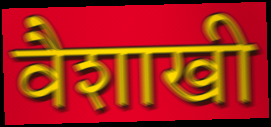
वैशाखी